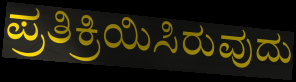
ಪ್ರತಿಕ್ರಿಯಿಸಿರುವುದು